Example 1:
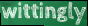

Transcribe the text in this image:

wittingly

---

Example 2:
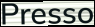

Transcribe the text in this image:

Presso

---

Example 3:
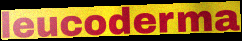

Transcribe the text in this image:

leucoderma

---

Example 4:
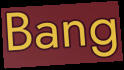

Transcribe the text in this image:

Bang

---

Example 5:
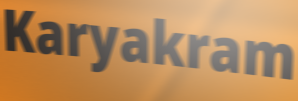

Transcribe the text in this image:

Karyakram